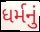
ધર્મનું